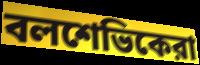
বলশেভিকেরা